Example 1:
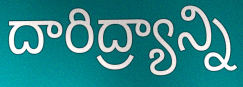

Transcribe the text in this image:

దారిద్ర్యాన్ని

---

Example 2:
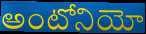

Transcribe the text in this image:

అంటోనియో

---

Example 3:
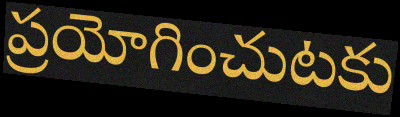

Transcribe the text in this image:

ప్రయోగించుటకు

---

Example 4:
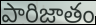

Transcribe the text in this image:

పారిజాతం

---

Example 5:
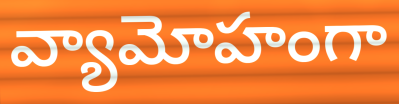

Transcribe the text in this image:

వ్యామోహంగా